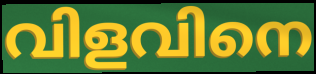
വിളവിനെ